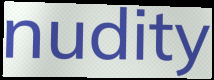
nudity